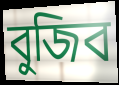
বুজিব